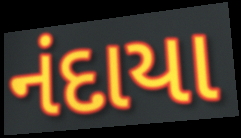
નંદાયા